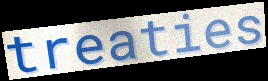
treaties